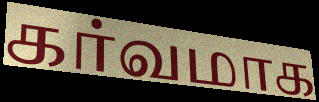
கர்வமாக